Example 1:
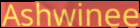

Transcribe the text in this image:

Ashwinee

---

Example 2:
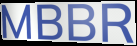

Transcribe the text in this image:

MBBR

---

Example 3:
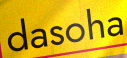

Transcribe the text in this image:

dasoha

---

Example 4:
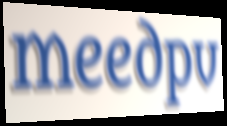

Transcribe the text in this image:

meedpu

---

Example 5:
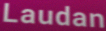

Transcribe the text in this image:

Laudan